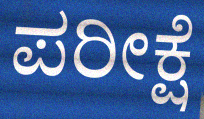
ಪರೀಕ್ಷೆ